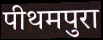
पीथमपुरा